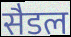
सैडल